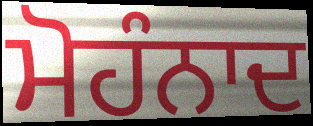
ਮੋਹੰਨਾਦ